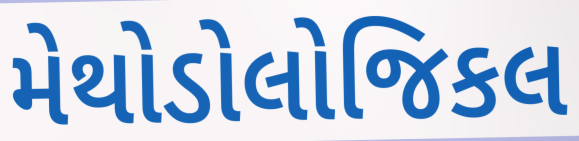
મેથોડોલોજિકલ